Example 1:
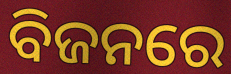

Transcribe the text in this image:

ବିଜନରେ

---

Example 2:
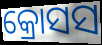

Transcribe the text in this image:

କ୍ରୋସସ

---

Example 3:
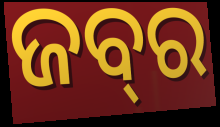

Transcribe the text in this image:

ଜବ୍‍ର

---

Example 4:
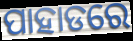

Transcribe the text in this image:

ପାହାଡରେ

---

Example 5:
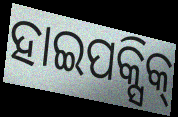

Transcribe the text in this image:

ହାଇପକ୍ସିକ୍